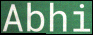
Abhi